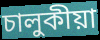
চালুকীয়া